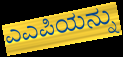
ಎಎಪಿಯನ್ನು